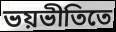
ভয়ভীতিতে